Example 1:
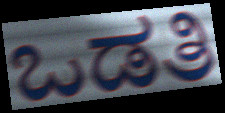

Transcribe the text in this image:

ಒಡತಿ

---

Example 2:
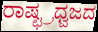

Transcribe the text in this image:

ರಾಷ್ಟ್ರಧ್ವಜದ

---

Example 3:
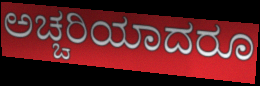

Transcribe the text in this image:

ಅಚ್ಚರಿಯಾದರೂ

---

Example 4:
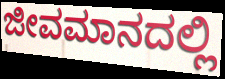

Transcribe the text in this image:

ಜೀವಮಾನದಲ್ಲಿ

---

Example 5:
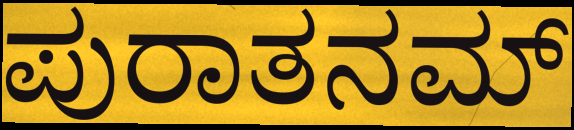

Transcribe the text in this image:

ಪುರಾತನಮ್